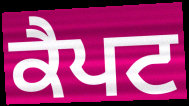
ਕੈਪਟ